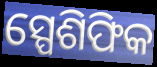
ସ୍ପେଶିଫିକ